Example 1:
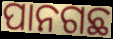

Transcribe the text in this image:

ପାନଗଛ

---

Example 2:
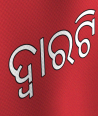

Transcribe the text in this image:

ଦ୍ୱାରଟି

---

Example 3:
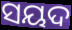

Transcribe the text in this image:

ସୟଦ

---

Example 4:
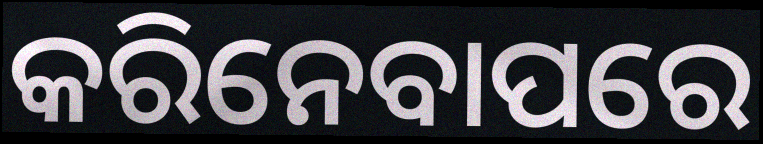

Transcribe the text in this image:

କରିନେବାପରେ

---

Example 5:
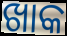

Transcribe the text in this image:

ଖାକ